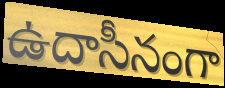
ఉదాసీనంగా